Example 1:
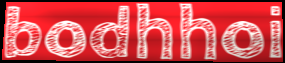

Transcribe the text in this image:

bodhhoi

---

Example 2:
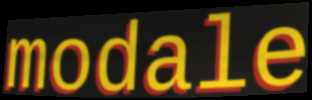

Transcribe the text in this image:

modale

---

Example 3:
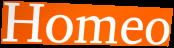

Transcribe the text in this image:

Homeo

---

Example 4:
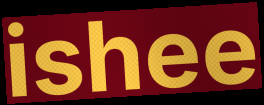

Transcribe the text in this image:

ishee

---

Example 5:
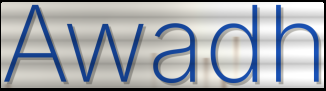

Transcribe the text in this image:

Awadh